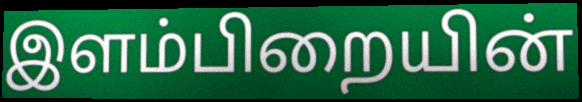
இளம்பிறையின்